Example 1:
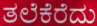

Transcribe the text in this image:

ತಲೆಕೆರೆದು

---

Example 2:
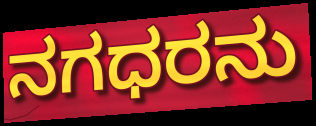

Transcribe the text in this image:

ನಗಧರನು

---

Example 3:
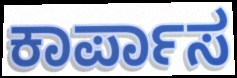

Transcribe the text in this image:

ಕಾರ್ಪಾಸ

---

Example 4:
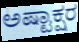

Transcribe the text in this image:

ಅಷ್ಟಾಕ್ಷರ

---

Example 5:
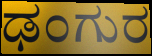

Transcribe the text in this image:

ಢಂಗುರ